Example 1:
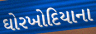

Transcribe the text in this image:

ઘોરખોદિયાના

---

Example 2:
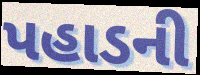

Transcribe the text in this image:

પહાડની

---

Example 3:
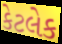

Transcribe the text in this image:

કેટલેક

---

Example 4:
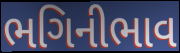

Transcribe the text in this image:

ભગિનીભાવ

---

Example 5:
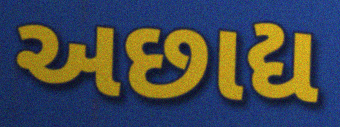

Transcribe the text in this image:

અછાદ્ય